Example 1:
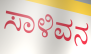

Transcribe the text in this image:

ಸಾಳಿವನ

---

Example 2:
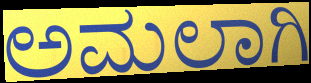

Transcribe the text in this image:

ಅಮಲಾಗಿ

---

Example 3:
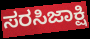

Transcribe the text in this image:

ಸರಸಿಜಾಕ್ಷಿ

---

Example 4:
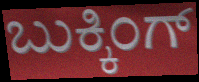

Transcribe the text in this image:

ಬುಕ್ಕಿಂಗ್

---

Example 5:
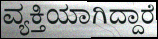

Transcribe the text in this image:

ವ್ಯಕ್ತಿಯಾಗಿದ್ದಾರೆ